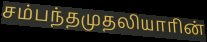
சம்பந்தமுதலியாரின்